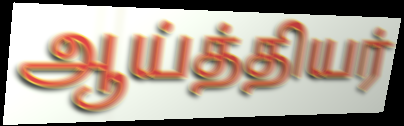
ஆய்த்தியர்